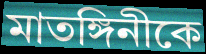
মাতঙ্গিনীকে